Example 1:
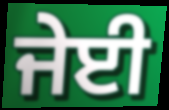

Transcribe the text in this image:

ਜੇਈ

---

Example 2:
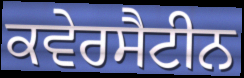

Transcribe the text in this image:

ਕਵੇਰਸੈਟੀਨ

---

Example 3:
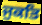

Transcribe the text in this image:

ਜੁਕਤਿ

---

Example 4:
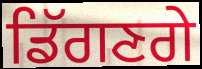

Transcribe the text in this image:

ਡਿੱਗਣਗੇ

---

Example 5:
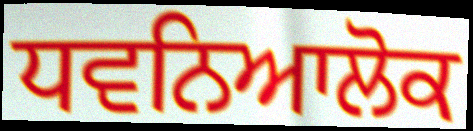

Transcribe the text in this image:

ਧਵਨਿਆਲੋਕ